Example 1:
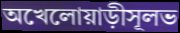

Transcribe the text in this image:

অখেলোয়াড়ীসূলভ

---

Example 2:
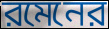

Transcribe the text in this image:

রমেনের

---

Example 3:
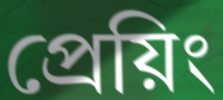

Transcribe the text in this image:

প্রেয়িং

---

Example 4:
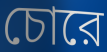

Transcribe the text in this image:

চোরে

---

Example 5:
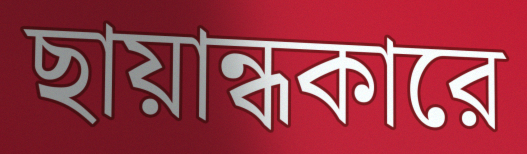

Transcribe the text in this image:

ছায়ান্ধকারে